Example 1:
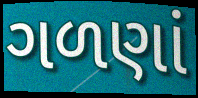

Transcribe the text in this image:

ગળણાં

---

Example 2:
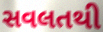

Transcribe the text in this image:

સવલતથી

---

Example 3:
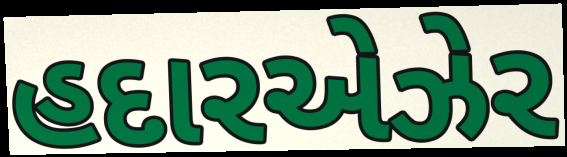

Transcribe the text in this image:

હદારએઝેર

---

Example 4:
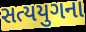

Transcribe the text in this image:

સત્યયુગના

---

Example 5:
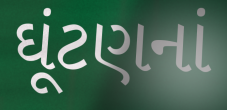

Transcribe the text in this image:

ઘૂંટણનાં